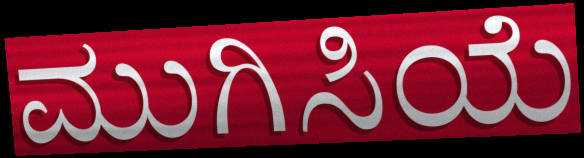
ಮುಗಿಸಿಯೆ